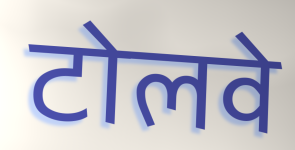
टोलवे